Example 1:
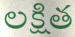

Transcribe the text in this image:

లక్షిత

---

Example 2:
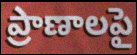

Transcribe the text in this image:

ప్రాణాలపై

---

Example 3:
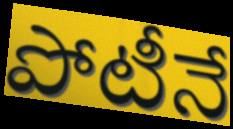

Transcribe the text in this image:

పోటీనే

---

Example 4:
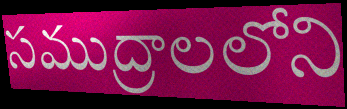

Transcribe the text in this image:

సముద్రాలలోని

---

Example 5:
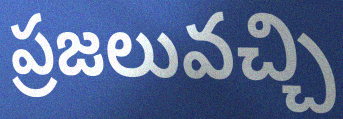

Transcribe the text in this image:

ప్రజలువచ్చి